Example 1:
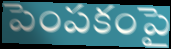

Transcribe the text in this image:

పెంపకంపై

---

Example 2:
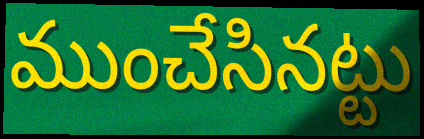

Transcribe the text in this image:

ముంచేసినట్టు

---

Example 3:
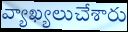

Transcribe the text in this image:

వ్యాఖ్యలుచేశారు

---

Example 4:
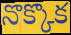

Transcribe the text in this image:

నొక్కొక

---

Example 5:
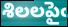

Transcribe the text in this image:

శిలలపైఁ